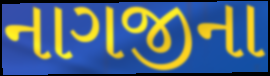
નાગજીના